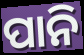
ପାନି